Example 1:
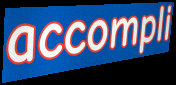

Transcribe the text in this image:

accompli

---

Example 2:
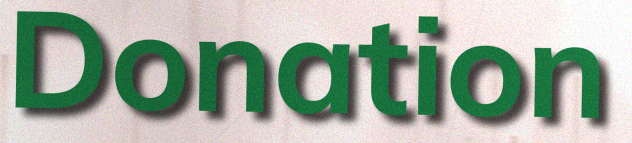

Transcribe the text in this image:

Donation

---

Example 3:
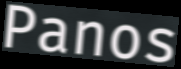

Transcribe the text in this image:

Panos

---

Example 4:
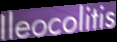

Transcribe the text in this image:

Ileocolitis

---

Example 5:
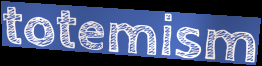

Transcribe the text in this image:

totemism